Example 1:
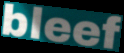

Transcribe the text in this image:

bleef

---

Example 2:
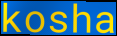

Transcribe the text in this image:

kosha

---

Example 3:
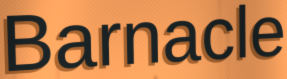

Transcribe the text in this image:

Barnacle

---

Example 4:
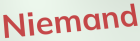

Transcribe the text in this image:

Niemand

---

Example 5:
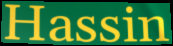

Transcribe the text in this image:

Hassin